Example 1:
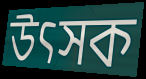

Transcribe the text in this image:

উৎসক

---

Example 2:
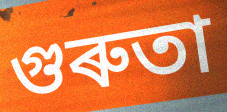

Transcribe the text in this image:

গুৰুতা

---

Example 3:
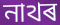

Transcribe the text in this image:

নাথৰ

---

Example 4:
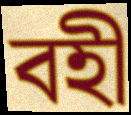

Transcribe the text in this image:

বহী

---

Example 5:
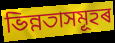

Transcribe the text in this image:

ভিন্নতাসমূহৰ